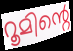
റൂമിന്റെ